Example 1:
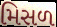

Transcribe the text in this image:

મિસળ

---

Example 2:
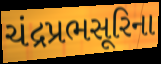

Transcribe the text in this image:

ચંદ્રપ્રભસૂરિના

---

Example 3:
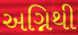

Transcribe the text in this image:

અગ્નિથી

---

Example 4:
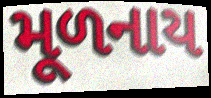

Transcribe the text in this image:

મૂળનાય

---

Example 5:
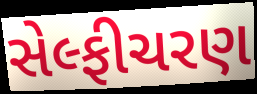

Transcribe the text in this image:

સેલ્ફીચરણ